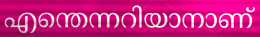
എന്തെന്നറിയാനാണ്